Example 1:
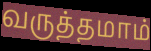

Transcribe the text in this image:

வருத்தமாம்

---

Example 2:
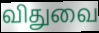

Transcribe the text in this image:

விதுவை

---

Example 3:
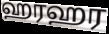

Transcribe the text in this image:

ஹரஹர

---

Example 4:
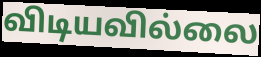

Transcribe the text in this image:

விடியவில்லை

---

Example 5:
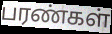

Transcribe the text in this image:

பரண்கள்